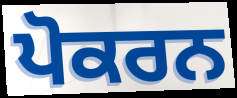
ਪੋਕਰਨ